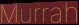
Murrah